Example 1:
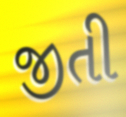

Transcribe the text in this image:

જીતી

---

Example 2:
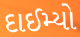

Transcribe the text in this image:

દાઈમ્યો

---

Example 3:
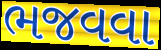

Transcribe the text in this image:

ભજવવા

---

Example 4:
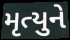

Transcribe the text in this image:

મૃત્યુને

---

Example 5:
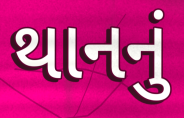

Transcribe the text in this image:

થાનનું